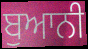
ਬੁਆਨੀ